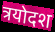
त्रयोदश